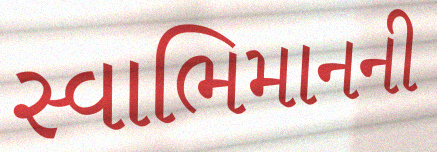
સ્વાભિમાનની